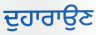
ਦੁਹਾਰਾਉਣ